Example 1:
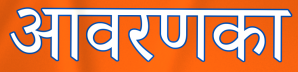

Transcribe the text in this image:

आवरणका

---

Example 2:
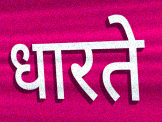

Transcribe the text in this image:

धारते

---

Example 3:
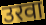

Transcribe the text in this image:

उरवा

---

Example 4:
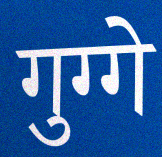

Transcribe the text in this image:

गुग्गे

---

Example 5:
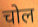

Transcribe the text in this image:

चोल